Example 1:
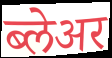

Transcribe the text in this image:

ब्लेअर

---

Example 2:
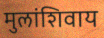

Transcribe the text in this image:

मुलांशिवाय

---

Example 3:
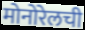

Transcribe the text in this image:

मोनोरेलची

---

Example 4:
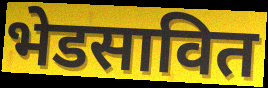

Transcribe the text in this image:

भेडसावित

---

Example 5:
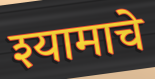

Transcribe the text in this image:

श्यामाचे